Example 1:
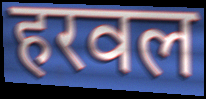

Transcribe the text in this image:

हरवल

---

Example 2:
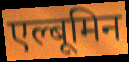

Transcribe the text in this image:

एल्बूमिन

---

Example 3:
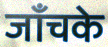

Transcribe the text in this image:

जाँचके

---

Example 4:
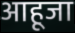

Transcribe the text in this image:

आहूजा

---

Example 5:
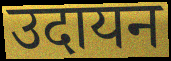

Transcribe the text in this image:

उदायन